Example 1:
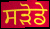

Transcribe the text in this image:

ਸੜੋਡੇ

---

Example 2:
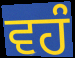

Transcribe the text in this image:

ਵਹੰ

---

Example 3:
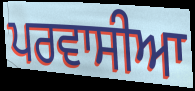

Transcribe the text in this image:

ਪਰਵਾਸੀਆ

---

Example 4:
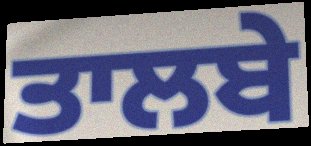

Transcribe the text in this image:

ਤਾਲਬੇ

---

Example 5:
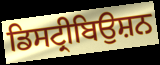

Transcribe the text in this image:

ਡਿਸਟ੍ਰੀਬਿਉਸ਼ਨ